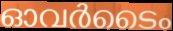
ഓവർടൈം